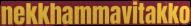
nekkhammavitakko